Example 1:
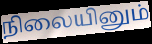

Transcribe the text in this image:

நிலையினும்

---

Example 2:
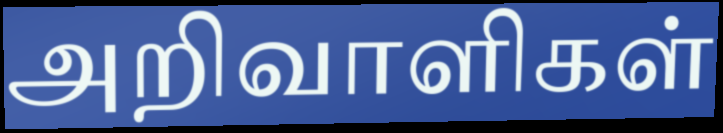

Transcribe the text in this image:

அறிவாளிகள்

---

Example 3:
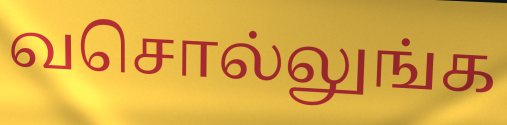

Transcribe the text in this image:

வசொல்லுங்க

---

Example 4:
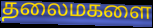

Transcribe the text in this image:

தலைமகளை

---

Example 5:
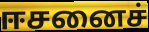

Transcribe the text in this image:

ஈசனைச்